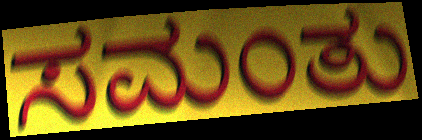
ಸಮಂತು